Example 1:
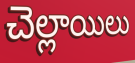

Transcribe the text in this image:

చెల్లాయిలు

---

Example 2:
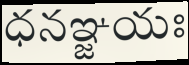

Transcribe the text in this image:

ధనఞ్జయః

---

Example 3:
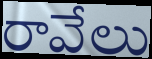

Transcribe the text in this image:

రావేలు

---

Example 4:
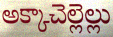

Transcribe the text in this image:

అక్కాచెల్లెల్లు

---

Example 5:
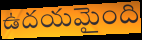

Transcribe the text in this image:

ఉదయమైంది